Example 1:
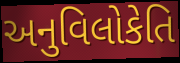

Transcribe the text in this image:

અનુવિલોકેતિ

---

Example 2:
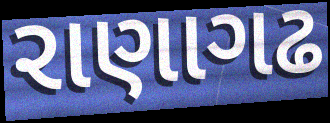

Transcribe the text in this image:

રાણાગઢ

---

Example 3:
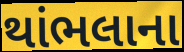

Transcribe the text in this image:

થાંભલાના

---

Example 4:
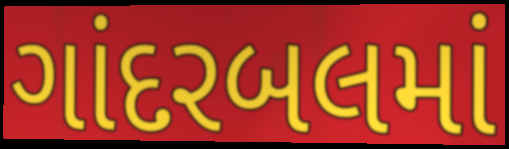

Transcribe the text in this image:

ગાંદરબલમાં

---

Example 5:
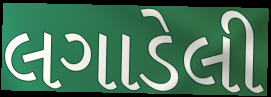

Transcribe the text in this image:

લગાડેલી